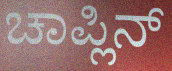
ಚಾಪ್ಲಿನ್